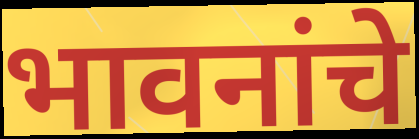
भावनांचे